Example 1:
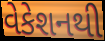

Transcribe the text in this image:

વેકેશનથી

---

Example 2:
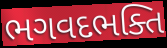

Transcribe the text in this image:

ભગવદભક્તિ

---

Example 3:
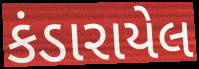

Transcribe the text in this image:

કંડારાયેલ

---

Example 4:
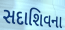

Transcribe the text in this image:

સદાશિવના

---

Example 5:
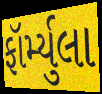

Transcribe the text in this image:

ફૉર્મ્યુલા